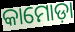
କାମୋଡ଼ା